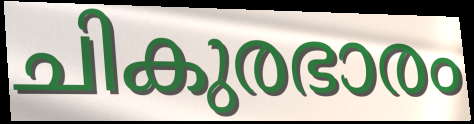
ചികുരഭാരം